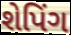
શેપિંગ